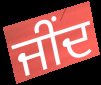
ਜੀਂਦ